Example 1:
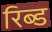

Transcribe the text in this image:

रिब्ड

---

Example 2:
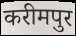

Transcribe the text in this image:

करीमपुर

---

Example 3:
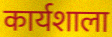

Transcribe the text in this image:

कार्यशाला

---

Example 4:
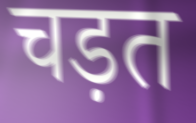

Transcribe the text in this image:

चड़त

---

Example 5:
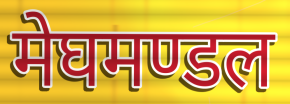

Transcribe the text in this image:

मेघमण्डल